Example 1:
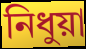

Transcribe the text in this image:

নিধুয়া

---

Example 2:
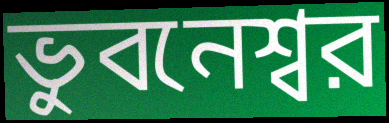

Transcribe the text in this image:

ভুবনেশ্বর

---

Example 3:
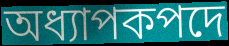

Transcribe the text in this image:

অধ্যাপকপদে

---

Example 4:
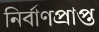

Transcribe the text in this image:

নির্বাণপ্রাপ্ত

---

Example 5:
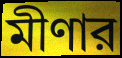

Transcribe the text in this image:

মীণার